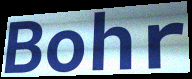
Bohr